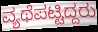
ವ್ಯಥೆಪಟ್ಟಿದ್ದರು